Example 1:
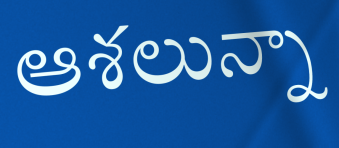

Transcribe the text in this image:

ఆశలున్నా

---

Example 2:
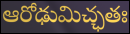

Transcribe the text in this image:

ఆరోఢుమిచ్ఛతః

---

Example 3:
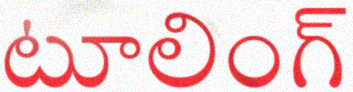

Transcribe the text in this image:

టూలింగ్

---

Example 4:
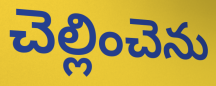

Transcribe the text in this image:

చెల్లించెను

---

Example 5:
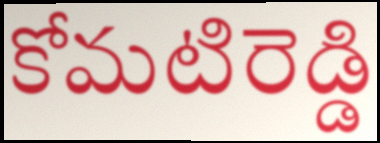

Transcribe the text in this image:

కోమటిరెడ్డి